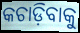
କଚାଡ଼ିବାକୁ